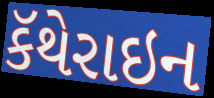
કૅથેરાઇન